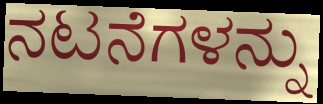
ನಟನೆಗಳನ್ನು